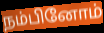
நம்பினோம்